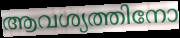
ആവശ്യത്തിനോ